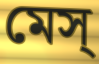
মেস্